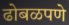
ढोबळपणे